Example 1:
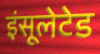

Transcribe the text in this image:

इंसूलेटेड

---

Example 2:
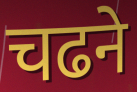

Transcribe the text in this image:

चढने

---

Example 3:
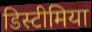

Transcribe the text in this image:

डिस्टीमिया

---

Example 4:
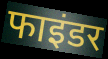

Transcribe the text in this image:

फाइंडर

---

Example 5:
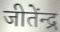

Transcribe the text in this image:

जीतेंन्द्र